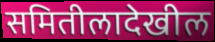
समितीलादेखील